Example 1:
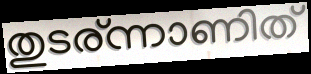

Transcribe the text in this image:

തുടര്ന്നാണിത്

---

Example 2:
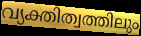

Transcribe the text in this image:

വ്യക്തിത്വത്തിലും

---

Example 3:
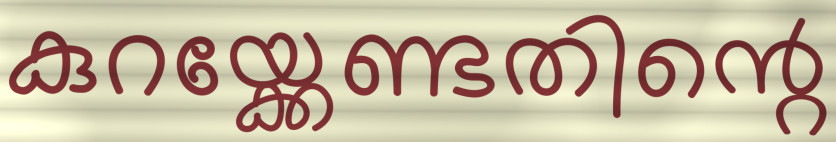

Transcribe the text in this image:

കുറയ്ക്കേണ്ടതിന്റെ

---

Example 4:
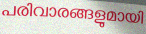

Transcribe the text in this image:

പരിവാരങ്ങളുമായി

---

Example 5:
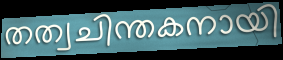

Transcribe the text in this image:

തത്വചിന്തകനായി